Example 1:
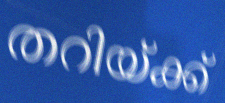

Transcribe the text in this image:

തറിയ്ക്ക്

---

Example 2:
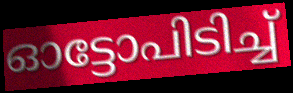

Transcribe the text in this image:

ഓട്ടോപിടിച്ച്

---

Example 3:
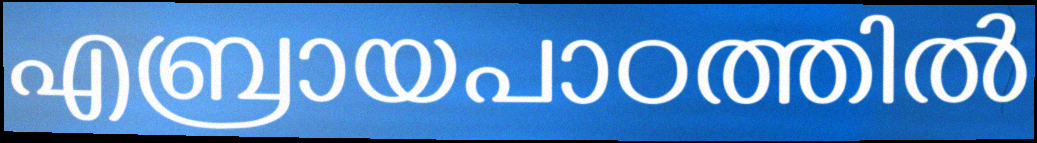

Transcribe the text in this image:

എബ്രായപാഠത്തിൽ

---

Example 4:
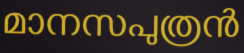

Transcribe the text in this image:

മാനസപുത്രൻ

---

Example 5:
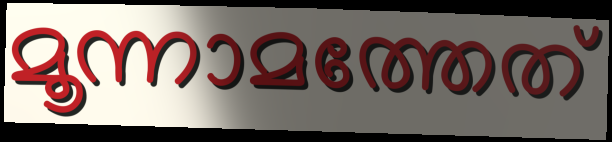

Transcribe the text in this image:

മൂന്നാമത്തേത്